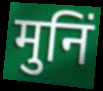
मुनिं